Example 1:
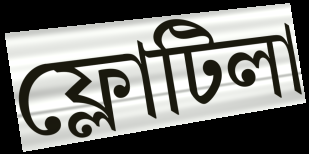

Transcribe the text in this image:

ফ্লোটিলা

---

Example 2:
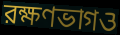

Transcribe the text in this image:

রক্ষণভাগও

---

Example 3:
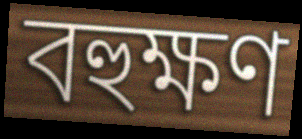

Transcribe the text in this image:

বহুক্ষণ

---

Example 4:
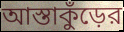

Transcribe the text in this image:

আস্তাকুঁড়ের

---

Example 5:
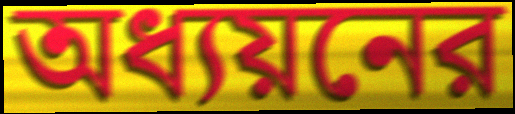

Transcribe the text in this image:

অধ্যয়নের